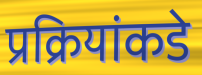
प्रक्रियांकडे